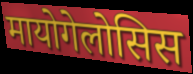
मायोगेलोसिस